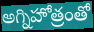
అగ్నిహోత్రంతో